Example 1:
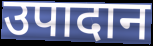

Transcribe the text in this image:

उपादान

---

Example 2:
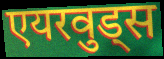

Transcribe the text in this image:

एयरवुड्स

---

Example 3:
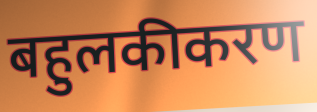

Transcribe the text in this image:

बहुलकीकरण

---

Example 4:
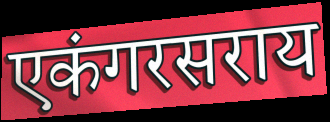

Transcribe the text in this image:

एकंगरसराय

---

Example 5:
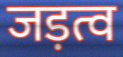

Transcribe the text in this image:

जड़त्व